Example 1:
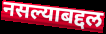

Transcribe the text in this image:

नसल्याबद्दल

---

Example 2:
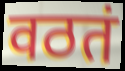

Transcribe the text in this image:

वठतं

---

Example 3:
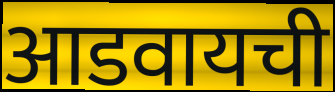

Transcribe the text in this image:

आडवायची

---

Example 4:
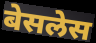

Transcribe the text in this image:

बेसलेस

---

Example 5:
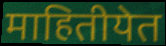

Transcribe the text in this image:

माहितीयेत